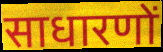
साधारणों